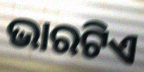
ଭାରଟିଏ